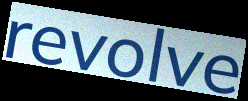
revolve